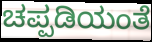
ಚಪ್ಪಡಿಯಂತೆ